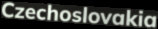
Czechoslovakia